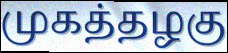
முகத்தழகு